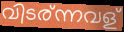
വിടര്ന്നവള്